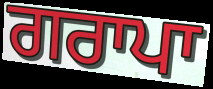
ਗਰਾਪਾ